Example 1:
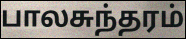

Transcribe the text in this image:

பாலசுந்தரம்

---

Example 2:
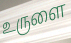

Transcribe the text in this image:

உருளை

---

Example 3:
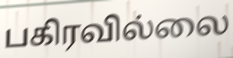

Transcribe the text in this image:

பகிரவில்லை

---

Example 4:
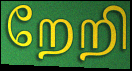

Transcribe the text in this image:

றேறி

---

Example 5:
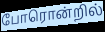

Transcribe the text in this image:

போரொன்றில்